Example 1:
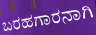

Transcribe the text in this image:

ಬರಹಗಾರನಾಗಿ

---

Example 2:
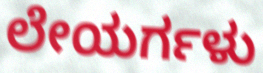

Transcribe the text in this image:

ಲೇಯರ್ಗಳು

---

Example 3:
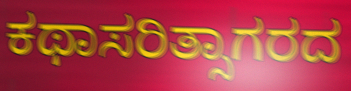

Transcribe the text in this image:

ಕಥಾಸರಿತ್ಸಾಗರದ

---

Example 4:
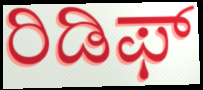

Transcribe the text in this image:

ರಿಡಿಫ್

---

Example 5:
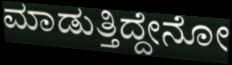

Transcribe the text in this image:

ಮಾಡುತ್ತಿದ್ದೇನೋ